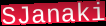
SJanaki